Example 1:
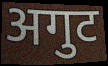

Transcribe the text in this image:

अगुट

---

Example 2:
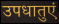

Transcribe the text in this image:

उपधातुएं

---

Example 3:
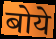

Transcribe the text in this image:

बोये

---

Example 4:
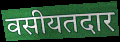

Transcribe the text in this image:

वसीयतदार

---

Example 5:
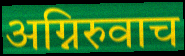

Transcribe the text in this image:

अग्निरुवाच